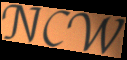
NCW